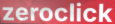
zeroclick